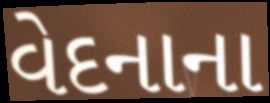
વેદનાના